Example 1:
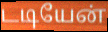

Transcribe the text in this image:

டடியேன்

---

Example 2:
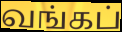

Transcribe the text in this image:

வங்கப்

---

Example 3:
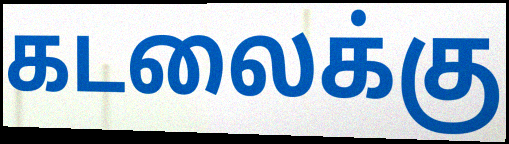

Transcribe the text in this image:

கடலைக்கு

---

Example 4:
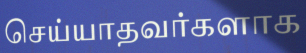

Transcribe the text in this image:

செய்யாதவர்களாக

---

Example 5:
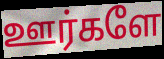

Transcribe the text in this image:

ஊர்களே